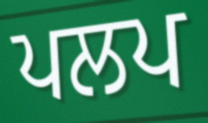
ਪਲਪ